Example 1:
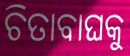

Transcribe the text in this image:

ଚିତାବାଘକୁ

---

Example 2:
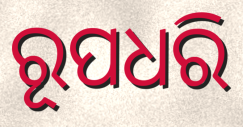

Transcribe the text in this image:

ରୂପଧରି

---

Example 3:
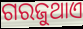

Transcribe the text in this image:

ଗରଜୁଥାଏ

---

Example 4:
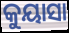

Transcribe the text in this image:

କୁୟାସା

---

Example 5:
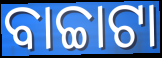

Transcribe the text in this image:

ବାଚ୍ଚାଟା